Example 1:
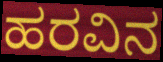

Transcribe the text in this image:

ಹರವಿನ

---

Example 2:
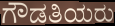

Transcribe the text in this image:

ಗೌಡತಿಯರು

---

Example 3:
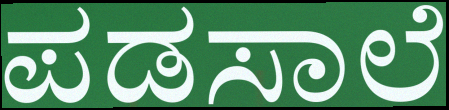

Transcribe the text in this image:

ಪಡಸಾಲೆ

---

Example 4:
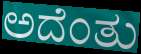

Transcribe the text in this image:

ಅದೆಂತು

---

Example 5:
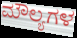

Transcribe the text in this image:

ಮೌಲ್ಯಗಳ